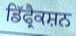
ਡਿੱਫ੍ਰੈਕਸ਼ਨ